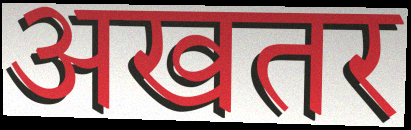
अखतर